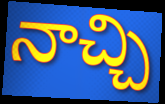
నాచ్చి